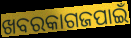
ଖବରକାଗଜପାଇଁ